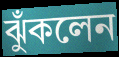
ঝুঁকলেন